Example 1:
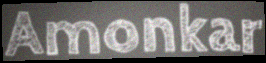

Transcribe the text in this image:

Amonkar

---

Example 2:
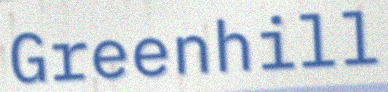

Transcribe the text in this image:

Greenhill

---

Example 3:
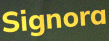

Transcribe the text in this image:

Signora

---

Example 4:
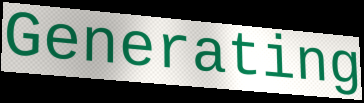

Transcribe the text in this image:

Generating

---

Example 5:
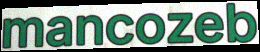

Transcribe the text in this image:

mancozeb